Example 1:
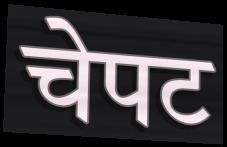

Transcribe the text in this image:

चेपट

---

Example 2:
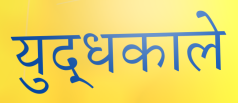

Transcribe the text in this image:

युद्धकाले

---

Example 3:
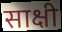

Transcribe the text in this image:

साक्षी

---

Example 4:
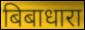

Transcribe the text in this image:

बिबाधारा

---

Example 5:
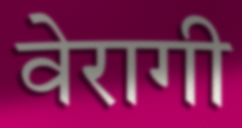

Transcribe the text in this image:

वेरागी